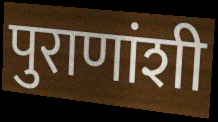
पुराणांशी